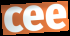
cee